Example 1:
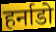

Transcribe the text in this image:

हर्नाडो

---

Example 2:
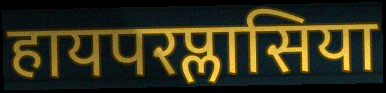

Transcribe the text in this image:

हायपरप्लासिया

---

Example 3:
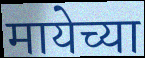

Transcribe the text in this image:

मायेच्या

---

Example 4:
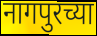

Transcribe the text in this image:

नागपुरच्या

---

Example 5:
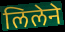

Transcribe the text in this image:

लिलेने